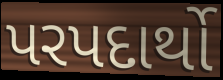
પરપદાર્થો